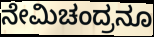
ನೇಮಿಚಂದ್ರನೂ